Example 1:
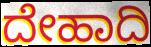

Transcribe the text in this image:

ದೇಹಾದಿ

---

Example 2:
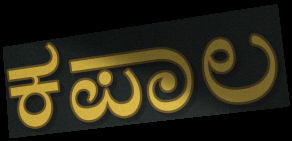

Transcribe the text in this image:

ಕಪಾಲ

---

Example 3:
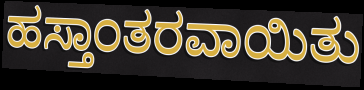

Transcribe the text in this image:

ಹಸ್ತಾಂತರವಾಯಿತು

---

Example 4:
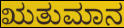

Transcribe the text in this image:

ಋತುಮಾನ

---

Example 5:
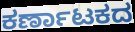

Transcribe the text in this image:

ಕರ್ಣಾಟಕದ